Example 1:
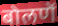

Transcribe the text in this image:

बोलणें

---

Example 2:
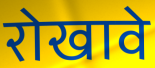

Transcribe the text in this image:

रोखावे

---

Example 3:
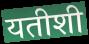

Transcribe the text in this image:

यतीशी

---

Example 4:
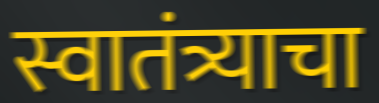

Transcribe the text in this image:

स्‍वातंत्र्याचा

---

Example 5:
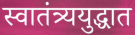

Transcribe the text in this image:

स्वातंत्र्ययुद्धात